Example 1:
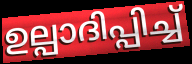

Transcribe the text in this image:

ഉല്പാദിപ്പിച്ച്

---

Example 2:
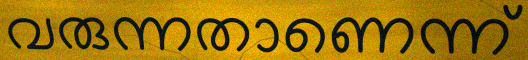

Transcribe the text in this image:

വരുന്നതാണെന്ന്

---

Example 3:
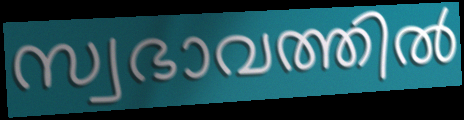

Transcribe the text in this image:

സ്വഭാവത്തിൽ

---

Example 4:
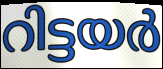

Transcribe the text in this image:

റിട്ടയർ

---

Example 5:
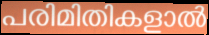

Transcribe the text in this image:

പരിമിതികളാൽ